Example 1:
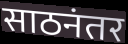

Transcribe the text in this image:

साठनंतर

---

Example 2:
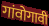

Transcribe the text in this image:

गांवोगावी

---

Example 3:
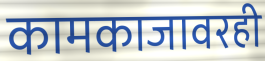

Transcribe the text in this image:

कामकाजावरही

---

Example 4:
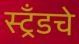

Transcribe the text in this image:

स्ट्रँडचे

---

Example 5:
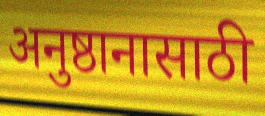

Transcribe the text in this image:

अनुष्ठानासाठी